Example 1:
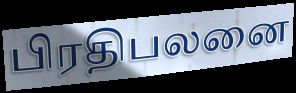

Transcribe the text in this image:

பிரதிபலனை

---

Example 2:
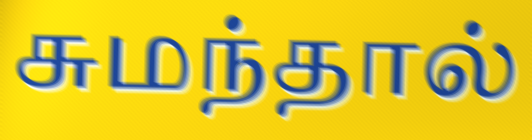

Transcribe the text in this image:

சுமந்தால்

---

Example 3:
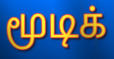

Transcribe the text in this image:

மூடிக்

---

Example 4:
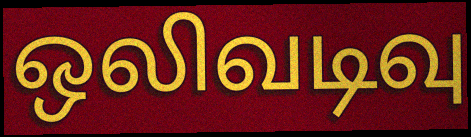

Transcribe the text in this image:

ஒலிவடிவு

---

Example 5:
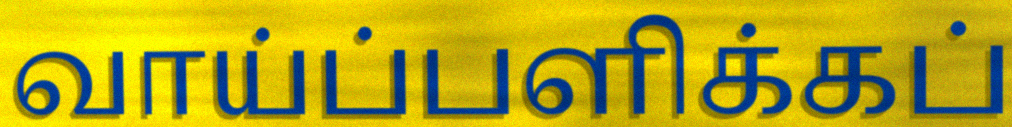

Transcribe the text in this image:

வாய்ப்பளிக்கப்